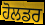
ਹੋਲਡਰ